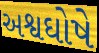
અશ્વઘોષે